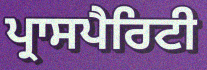
ਪ੍ਰਾਸਪੈਰਿਟੀ